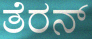
ತೆರನ್